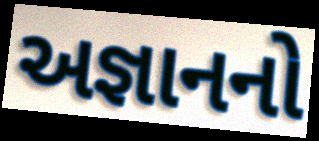
અજ્ઞાનનો